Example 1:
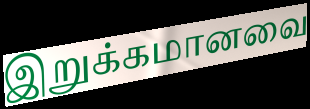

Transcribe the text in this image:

இறுக்கமானவை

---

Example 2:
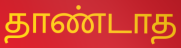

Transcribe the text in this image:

தாண்டாத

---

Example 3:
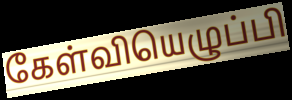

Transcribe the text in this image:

கேள்வியெழுப்பி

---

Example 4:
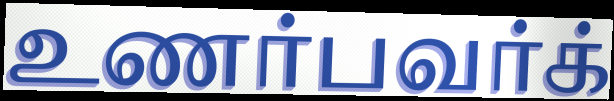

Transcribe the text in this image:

உணர்பவர்க்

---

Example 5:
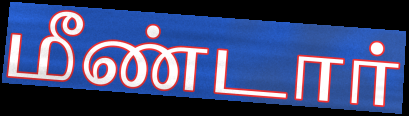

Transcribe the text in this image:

மீண்டார்